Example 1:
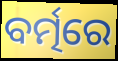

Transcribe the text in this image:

ବର୍ତ୍ମରେ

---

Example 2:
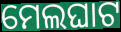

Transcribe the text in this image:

ମେଲଘାଟ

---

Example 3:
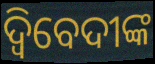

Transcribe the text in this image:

ଦ୍ବିବେଦୀଙ୍କ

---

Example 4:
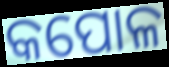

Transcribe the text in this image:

କପୋଳ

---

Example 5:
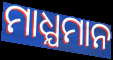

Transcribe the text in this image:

ମାଧ୍ଯମାନ